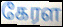
கேரள